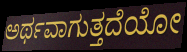
ಅರ್ಥವಾಗುತ್ತದೆಯೋ